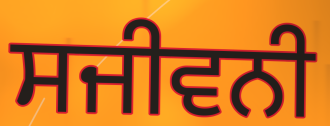
ਸਜੀਵਨੀ